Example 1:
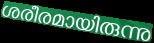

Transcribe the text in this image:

ശരീരമായിരുന്നു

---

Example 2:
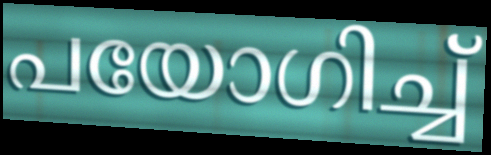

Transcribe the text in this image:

പയോഗിച്ച്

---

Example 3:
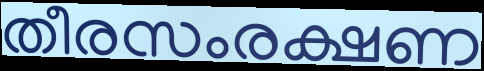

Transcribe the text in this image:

തീരസംരക്ഷണ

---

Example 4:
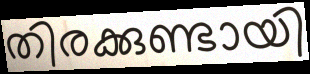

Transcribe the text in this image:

തിരക്കുണ്ടായി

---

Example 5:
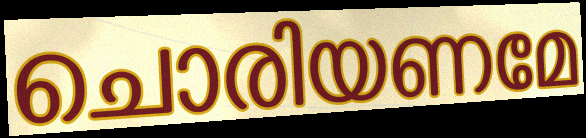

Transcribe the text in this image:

ചൊരിയണമേ